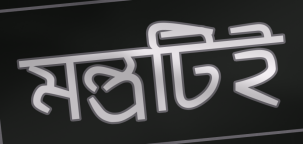
মন্ত্রটিই